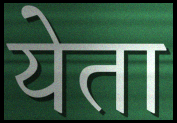
येता